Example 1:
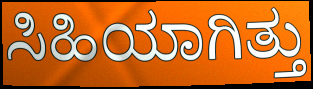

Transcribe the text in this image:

ಸಿಹಿಯಾಗಿತ್ತು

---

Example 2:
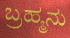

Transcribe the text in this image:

ಬ್ರಹ್ಮನು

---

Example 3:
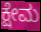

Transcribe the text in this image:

ಕ್ಷೇಮ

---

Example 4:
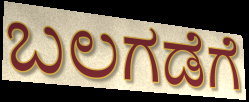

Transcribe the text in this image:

ಬಲಗಡೆಗೆ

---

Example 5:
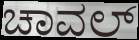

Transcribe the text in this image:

ಚಾವಲ್